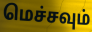
மெச்சவும்